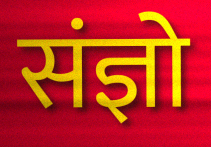
संज्ञो